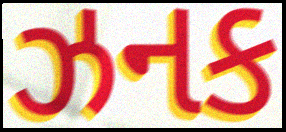
ઝનક